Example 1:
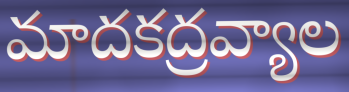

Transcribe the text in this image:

మాదకద్రవ్యాల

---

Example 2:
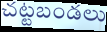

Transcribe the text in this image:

చట్టబండలు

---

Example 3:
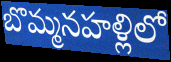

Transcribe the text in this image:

బొమ్మనహళ్లిలో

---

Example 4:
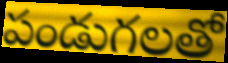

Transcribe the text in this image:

పండుగలతో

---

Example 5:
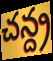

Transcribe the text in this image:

చన్ద్ర